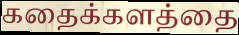
கதைக்களத்தை